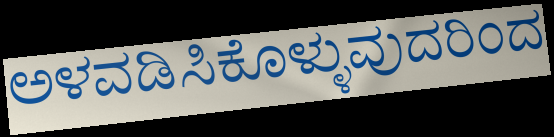
ಅಳವಡಿಸಿಕೊಳ್ಳುವುದರಿಂದ